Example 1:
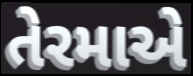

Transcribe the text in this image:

તેરમાએ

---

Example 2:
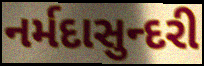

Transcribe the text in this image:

નર્મદાસુન્દરી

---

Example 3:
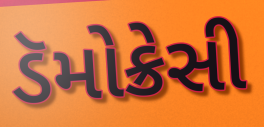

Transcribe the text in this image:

ડૅમોક્રેસી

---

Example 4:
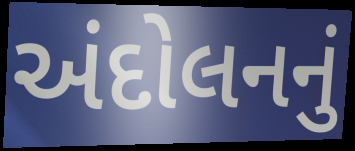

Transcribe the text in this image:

અંદોલનનું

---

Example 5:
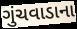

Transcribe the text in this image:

ગુંચવાડાના